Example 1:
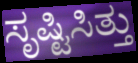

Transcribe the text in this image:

ಸೃಷ್ಟಿಸಿತ್ತು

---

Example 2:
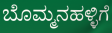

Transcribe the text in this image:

ಬೊಮ್ಮನಹಳ್ಳಿಗೆ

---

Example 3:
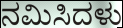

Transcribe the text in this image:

ನಮಿಸಿದಳು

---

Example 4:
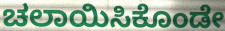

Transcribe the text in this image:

ಚಲಾಯಿಸಿಕೊಂಡೇ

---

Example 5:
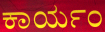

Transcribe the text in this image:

ಕಾರ್ಯಂ